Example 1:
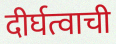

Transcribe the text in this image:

दीर्घत्वाची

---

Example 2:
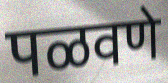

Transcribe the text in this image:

पळवणे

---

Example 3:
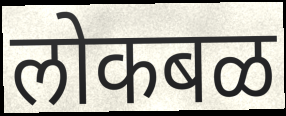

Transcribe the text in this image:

लोकबळ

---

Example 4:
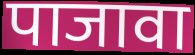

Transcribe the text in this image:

पाजावा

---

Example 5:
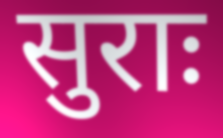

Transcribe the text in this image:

सुराः